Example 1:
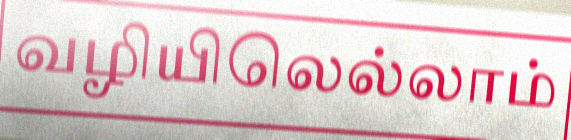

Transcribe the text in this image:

வழியிலெல்லாம்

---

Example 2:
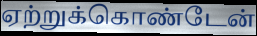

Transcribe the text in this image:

ஏற்றுக்கொண்டேன்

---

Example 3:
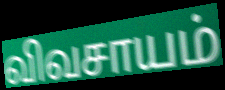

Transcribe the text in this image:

விவசாயம்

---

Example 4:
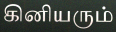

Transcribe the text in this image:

கினியரும்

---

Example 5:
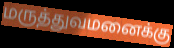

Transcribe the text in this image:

மருத்துவமனைக்கு